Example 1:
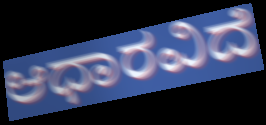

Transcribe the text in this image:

ಆಧಾರವಿದೆ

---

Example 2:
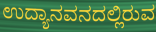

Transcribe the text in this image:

ಉದ್ಯಾನವನದಲ್ಲಿರುವ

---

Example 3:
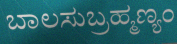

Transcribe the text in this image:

ಬಾಲಸುಬ್ರಹ್ಮಣ್ಯಂ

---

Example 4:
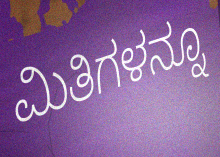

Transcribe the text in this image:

ಮಿತಿಗಳನ್ನೂ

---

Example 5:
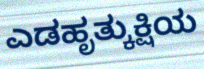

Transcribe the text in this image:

ಎಡಹೃತ್ಕುಕ್ಷಿಯ